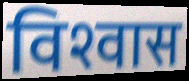
विश्वास